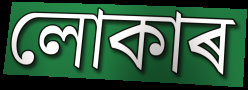
লোকাৰ